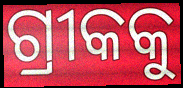
ଗ୍ରୀକକୁ